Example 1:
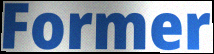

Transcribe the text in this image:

Former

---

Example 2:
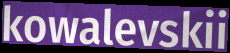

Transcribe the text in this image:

kowalevskii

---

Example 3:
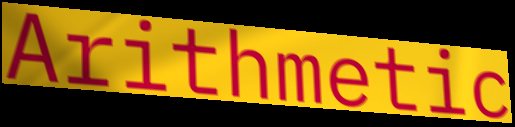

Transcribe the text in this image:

Arithmetic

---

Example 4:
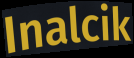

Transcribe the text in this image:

Inalcik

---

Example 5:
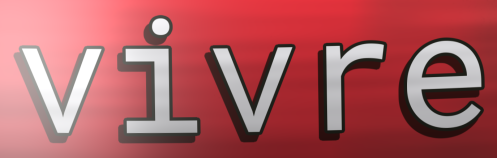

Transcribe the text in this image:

vivre